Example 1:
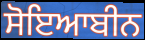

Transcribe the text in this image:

ਸੋਇਆਬੀਨ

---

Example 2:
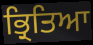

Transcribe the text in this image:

ਭ੍ਰਿਤਿਆ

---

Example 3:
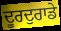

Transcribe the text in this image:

ਦੂਰਦੁਰਾਡੇ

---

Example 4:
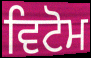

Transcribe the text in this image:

ਵਿਟੋਮ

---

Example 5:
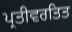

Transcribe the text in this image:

ਪ੍ਰਤੀਵਰਤਿਤ